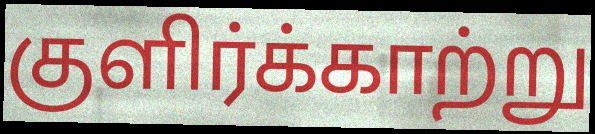
குளிர்க்காற்று